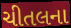
ચીતલના